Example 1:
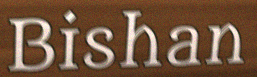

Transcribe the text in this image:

Bishan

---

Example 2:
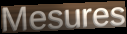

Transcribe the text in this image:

Mesures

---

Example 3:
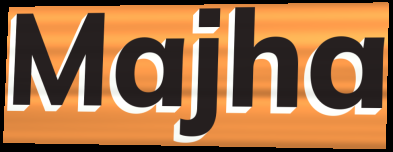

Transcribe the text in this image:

Majha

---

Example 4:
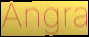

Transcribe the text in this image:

Angra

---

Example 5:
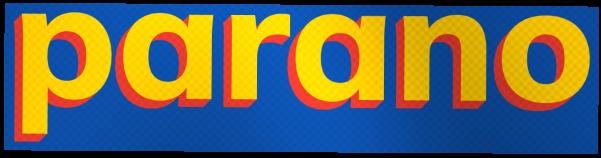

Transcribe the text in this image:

parano